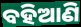
ବହିଆଣି